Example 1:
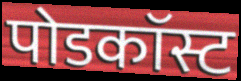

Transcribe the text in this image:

पोडकॉस्ट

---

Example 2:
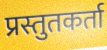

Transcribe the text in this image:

प्रस्तुतकर्ता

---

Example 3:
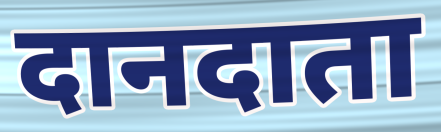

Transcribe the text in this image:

दानदाता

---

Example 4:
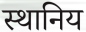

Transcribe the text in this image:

स्थानिय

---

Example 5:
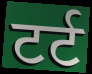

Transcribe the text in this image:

टर्ट